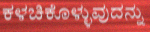
ಕಳಚಿಕೊಳ್ಳುವುದನ್ನು